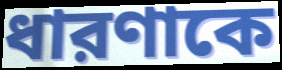
ধারণাকে